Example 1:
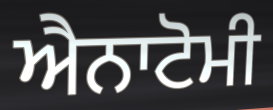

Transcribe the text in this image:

ਐਨਾਟੋਮੀ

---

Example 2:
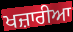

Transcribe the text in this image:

ਖਜ਼ਾਰੀਆ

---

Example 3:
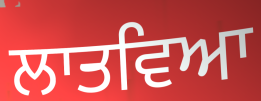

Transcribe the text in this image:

ਲਾਤਵਿਆ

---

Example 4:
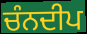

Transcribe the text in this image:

ਚੰਨਦੀਪ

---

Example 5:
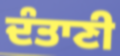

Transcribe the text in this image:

ਦੰਤਾਣੀ